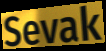
Sevak